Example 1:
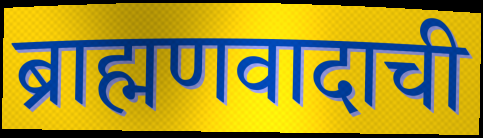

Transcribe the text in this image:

ब्राह्मणवादाची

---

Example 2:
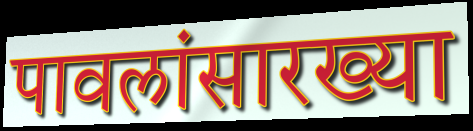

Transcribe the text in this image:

पावलांसारख्या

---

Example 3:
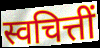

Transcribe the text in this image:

स्वचित्तीं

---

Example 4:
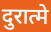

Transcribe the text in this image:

दुरात्मे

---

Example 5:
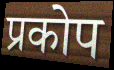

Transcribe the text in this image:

प्रकोप